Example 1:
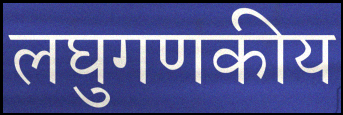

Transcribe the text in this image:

लघुगणकीय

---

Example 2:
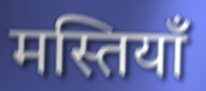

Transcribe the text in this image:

मस्तियाँ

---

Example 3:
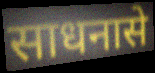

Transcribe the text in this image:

साधनासे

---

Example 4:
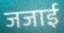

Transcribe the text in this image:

जजाई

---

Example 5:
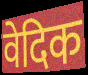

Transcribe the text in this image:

वेदिक